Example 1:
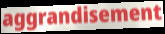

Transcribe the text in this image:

aggrandisement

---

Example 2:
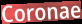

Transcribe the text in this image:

Coronae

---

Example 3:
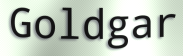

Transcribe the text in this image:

Goldgar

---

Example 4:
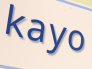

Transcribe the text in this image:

kayo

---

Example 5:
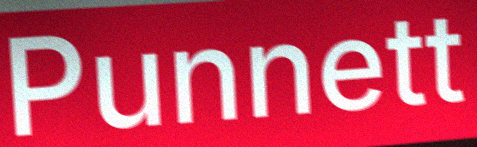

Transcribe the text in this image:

Punnett